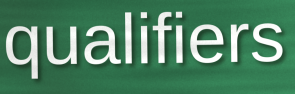
qualifiers